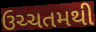
ઉચ્ચતમથી